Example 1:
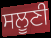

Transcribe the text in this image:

ਸਲੂਣੀ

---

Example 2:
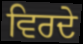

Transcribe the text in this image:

ਵਿਰਦੇ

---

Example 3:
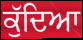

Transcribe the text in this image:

ਕੁੱਦਿਆ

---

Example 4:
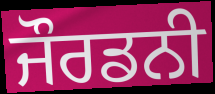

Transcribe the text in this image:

ਜੌਰਡਨੀ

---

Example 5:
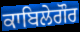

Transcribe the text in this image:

ਕਾਬਿਲੇਗੌਰ